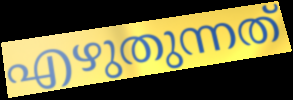
എഴുതുന്നത്